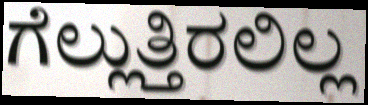
ಗೆಲ್ಲುತ್ತಿರಲಿಲ್ಲ